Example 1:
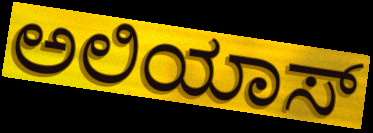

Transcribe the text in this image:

ಅಲಿಯಾಸ್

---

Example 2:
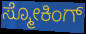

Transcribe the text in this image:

ಸ್ಮೋಕಿಂಗ್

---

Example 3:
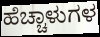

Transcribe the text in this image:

ಹೆಚ್ಚಾಳುಗಳ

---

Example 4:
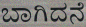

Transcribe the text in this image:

ಬಾಗಿದನೆ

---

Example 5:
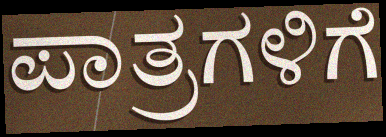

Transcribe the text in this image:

ಪಾತ್ರಗಳಿಗೆ